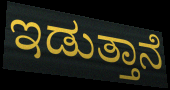
ಇಡುತ್ತಾನೆ